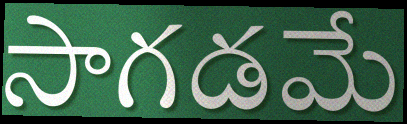
సాగడమే